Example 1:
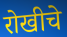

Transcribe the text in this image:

रोखीचे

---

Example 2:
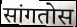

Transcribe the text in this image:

सांगतोस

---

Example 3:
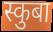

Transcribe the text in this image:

स्कुबा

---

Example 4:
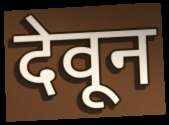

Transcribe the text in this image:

देवून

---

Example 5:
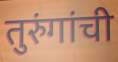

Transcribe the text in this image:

तुरुंगांची